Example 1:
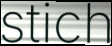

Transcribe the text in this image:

stich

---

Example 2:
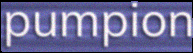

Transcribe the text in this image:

pumpion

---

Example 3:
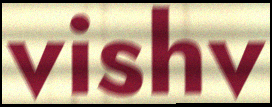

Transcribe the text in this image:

vishv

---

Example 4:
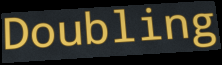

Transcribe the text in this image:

Doubling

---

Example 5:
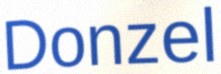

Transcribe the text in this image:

Donzel